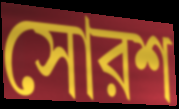
সোরশ